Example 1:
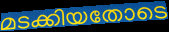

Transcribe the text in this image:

മടക്കിയതോടെ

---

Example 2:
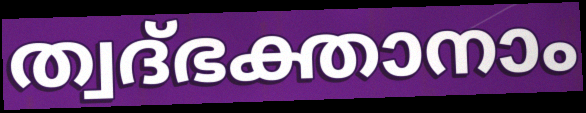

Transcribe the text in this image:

ത്വദ്ഭക്താനാം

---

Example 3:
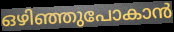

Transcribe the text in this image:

ഒഴിഞ്ഞുപോകാൻ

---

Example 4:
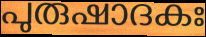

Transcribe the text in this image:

പുരുഷാദകഃ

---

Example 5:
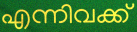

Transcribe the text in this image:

എന്നിവക്ക്